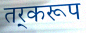
तर्करूप